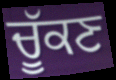
ਚੂੱਕਣ